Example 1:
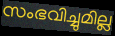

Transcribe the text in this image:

സംഭവിച്ചുമില്ല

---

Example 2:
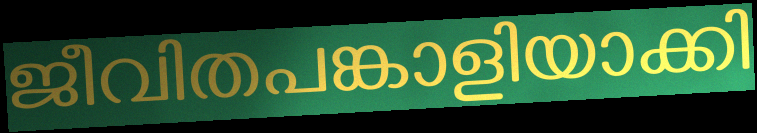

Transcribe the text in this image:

ജീവിതപങ്കാളിയാക്കി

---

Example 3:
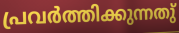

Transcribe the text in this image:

പ്രവർത്തിക്കുന്നതു്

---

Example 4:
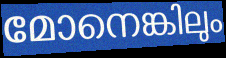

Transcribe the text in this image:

മോനെങ്കിലും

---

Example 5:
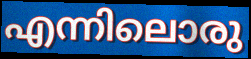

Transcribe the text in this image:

എന്നിലൊരു